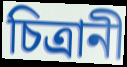
চিত্রানী